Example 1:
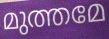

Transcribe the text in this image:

മുത്തമേ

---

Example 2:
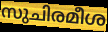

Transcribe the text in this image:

സുചിരമീശ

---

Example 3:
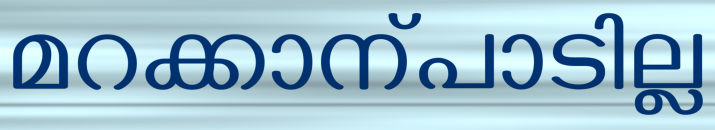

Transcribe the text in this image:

മറക്കാന്പാടില്ല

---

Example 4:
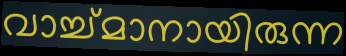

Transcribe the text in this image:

വാച്ച്മാനായിരുന്ന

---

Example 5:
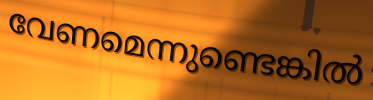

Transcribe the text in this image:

വേണമെന്നുണ്ടെങ്കിൽ